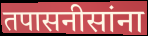
तपासनीसांना